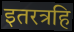
इतरत्रहि